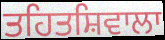
ਤਹਿਤਸ਼ਿਵਾਲਾ